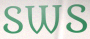
SWS